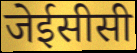
जेईसीसी